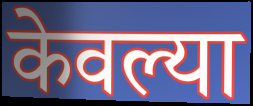
केवल्या